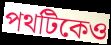
পথটিকেও